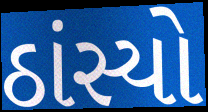
ઠાંસ્યો